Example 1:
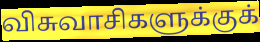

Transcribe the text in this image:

விசுவாசிகளுக்குக்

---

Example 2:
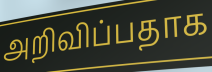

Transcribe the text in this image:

அறிவிப்பதாக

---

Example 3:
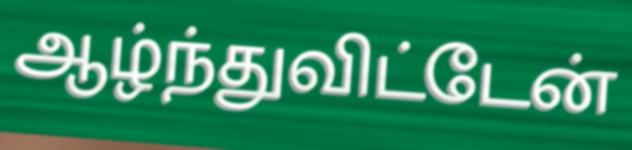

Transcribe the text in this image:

ஆழ்ந்துவிட்டேன்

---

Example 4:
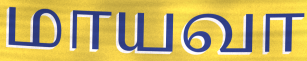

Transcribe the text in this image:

மாயவா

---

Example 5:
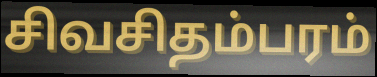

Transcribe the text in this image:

சிவசிதம்பரம்